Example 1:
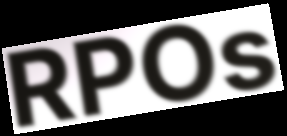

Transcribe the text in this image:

RPOs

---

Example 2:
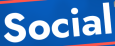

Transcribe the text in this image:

Social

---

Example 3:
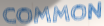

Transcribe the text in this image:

COMMON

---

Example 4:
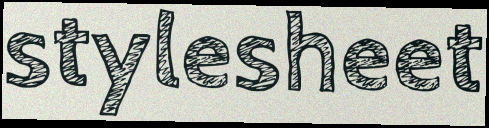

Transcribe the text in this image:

stylesheet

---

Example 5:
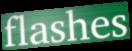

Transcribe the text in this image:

flashes